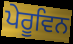
ਪੇਰੂਵਿਨ